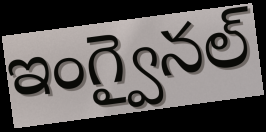
ఇంగ్వైనల్